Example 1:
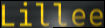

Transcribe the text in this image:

Lillee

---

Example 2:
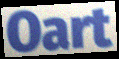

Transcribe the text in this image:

Oart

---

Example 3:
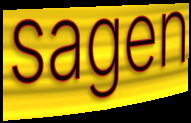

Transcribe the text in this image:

sagen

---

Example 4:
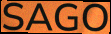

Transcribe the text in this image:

SAGO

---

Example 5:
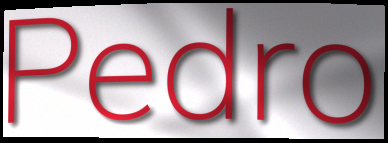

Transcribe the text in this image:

Pedro